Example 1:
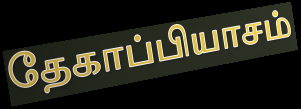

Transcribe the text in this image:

தேகாப்பியாசம்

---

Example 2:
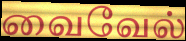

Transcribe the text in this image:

வைவேல்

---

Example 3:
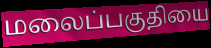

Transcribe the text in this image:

மலைப்பகுதியை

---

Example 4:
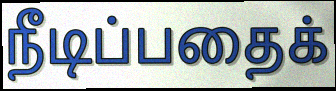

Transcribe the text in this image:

நீடிப்பதைக்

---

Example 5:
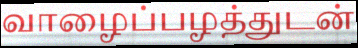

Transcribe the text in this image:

வாழைப்பழத்துடன்